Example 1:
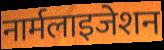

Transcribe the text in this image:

नार्मलाइजेशन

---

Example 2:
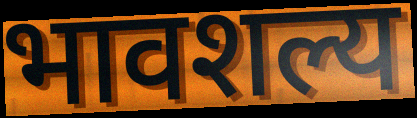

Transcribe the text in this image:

भावशल्य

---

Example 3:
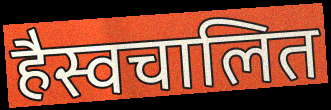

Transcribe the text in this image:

हैस्वचालित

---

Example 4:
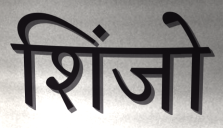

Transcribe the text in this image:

शिंजो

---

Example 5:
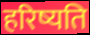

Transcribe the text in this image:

हरिष्यति